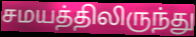
சமயத்திலிருந்து